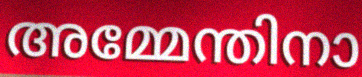
അമ്മേന്തിനാ